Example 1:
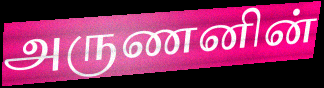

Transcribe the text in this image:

அருணனின்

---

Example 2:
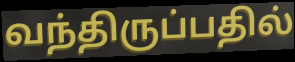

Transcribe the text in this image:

வந்திருப்பதில்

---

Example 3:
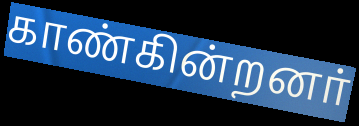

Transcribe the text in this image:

காண்கின்றனர்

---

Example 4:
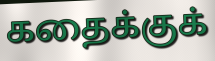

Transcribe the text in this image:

கதைக்குக்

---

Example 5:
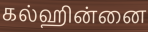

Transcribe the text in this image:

கல்ஹின்னை